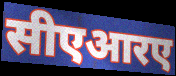
सीएआरए